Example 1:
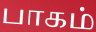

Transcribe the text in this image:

பாகம்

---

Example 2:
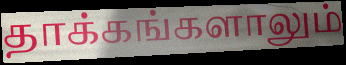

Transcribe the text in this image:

தாக்கங்களாலும்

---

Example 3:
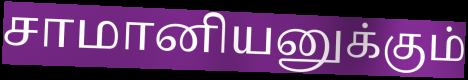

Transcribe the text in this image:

சாமானியனுக்கும்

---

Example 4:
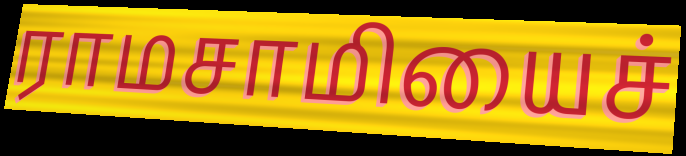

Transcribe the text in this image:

ராமசாமியைச்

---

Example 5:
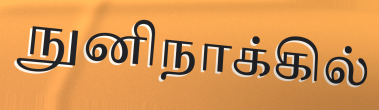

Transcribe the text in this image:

நுனிநாக்கில்